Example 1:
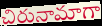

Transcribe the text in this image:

చిరునామాగా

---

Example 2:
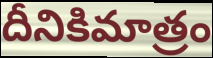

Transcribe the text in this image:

దీనికిమాత్రం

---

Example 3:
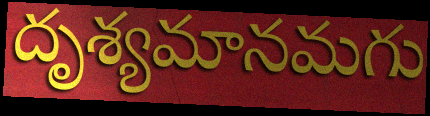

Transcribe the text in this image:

దృశ్యమానమగు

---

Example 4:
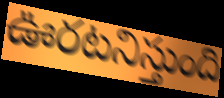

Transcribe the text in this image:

ఊరటనిస్తుంది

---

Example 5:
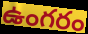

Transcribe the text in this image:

ఉంగరం